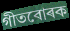
গীতবোৰক